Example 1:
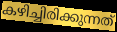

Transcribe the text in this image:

കഴിച്ചിരിക്കുന്നത്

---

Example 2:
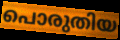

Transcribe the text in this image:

പൊരുതിയ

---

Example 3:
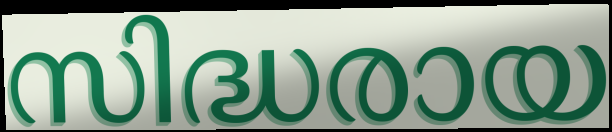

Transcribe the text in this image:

സിദ്ധരായ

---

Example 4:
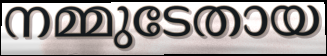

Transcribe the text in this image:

നമ്മുടേതായ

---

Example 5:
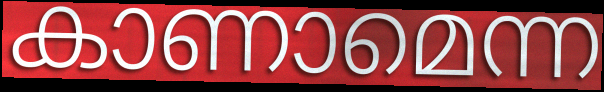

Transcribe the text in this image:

കാണാമെന്ന